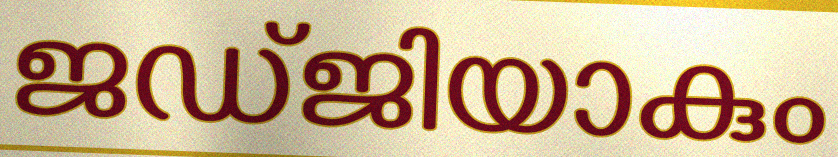
ജഡ്ജിയാകും